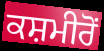
ਕਸ਼ਮੀਰੋਂ